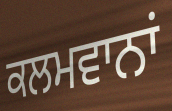
ਕਲਮਵਾਨਾਂ